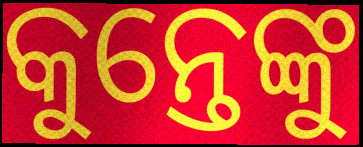
କୁନ୍ତେଙ୍କୁ